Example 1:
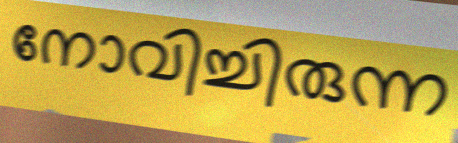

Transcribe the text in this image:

നോവിച്ചിരുന്ന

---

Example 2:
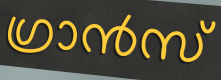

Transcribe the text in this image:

ഗ്രാൻസ്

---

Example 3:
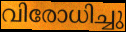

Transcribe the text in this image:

വിരോധിച്ചു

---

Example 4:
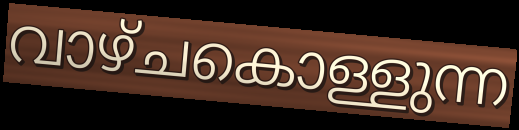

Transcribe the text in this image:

വാഴ്ചകൊള്ളുന്ന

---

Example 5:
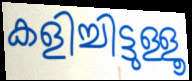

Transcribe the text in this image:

കളിച്ചിട്ടുള്ളൂ